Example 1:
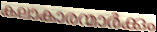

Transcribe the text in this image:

കലാകാരന്മാർക്കും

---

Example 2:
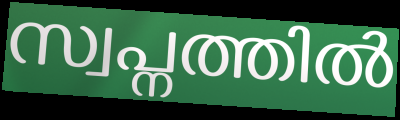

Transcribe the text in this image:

സ്വപ്നത്തിൽ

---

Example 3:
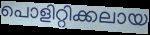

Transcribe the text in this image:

പൊളിറ്റിക്കലായ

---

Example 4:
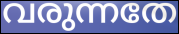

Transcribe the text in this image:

വരുന്നതേ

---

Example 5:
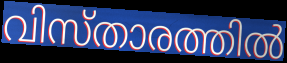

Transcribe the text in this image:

വിസ്താരത്തിൽ